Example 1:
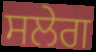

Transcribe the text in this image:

ਸਲੇਗ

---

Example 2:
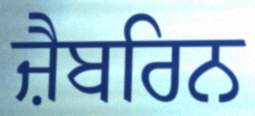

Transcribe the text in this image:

ਜ਼ੈਬਰਿਨ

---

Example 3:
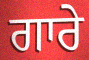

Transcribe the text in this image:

ਗਾਰੇ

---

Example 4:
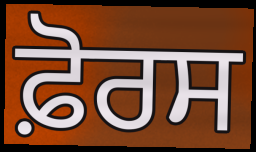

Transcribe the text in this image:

ਫ਼ੋਰਸ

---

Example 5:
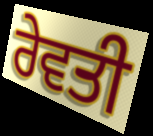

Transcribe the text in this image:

ਰੇਵਤੀ